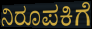
ನಿರೂಪಕಿಗೆ